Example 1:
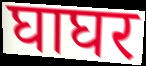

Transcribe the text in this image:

घाघर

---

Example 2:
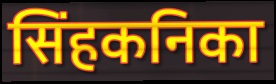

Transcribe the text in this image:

सिंहकनिका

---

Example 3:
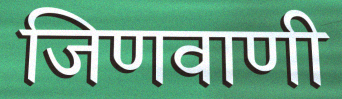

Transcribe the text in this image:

जिणवाणी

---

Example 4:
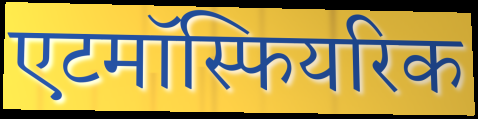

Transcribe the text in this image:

एटमॉस्फियरिक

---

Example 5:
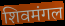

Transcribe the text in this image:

शिवमंगल